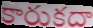
కారుకదా